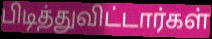
பிடித்துவிட்டார்கள்